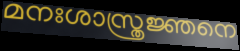
മനഃശാസ്ത്രജ്ഞനെ